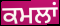
ਕਮਲਾਂ